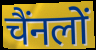
चैंनलों